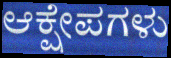
ಆಕ್ಷೇಪಗಳು